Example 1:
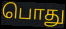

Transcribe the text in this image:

பொது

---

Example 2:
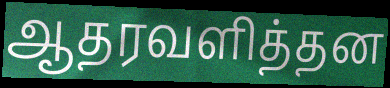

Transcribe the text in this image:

ஆதரவளித்தன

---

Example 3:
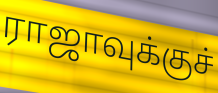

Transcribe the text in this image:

ராஜாவுக்குச்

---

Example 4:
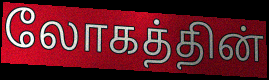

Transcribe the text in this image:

லோகத்தின்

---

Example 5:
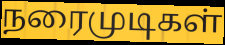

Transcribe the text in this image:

நரைமுடிகள்